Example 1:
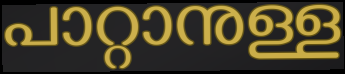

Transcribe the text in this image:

പാറ്റാനുള്ള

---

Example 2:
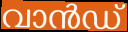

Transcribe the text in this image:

വാൻഡ്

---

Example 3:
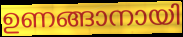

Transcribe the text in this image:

ഉണങ്ങാനായി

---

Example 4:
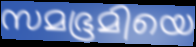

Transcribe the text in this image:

സമഭൂമിയെ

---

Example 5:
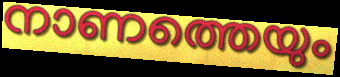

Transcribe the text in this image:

നാണത്തെയും